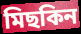
মিছকিন